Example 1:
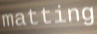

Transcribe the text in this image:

matting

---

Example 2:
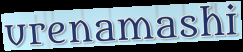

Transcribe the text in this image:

urenamashi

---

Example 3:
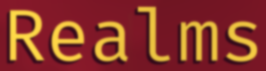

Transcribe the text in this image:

Realms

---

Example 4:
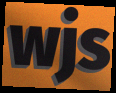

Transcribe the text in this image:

wjs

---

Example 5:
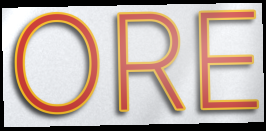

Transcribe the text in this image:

ORE